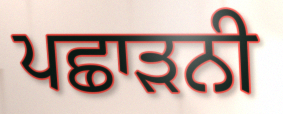
ਪਛਾੜਨੀ